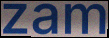
zam